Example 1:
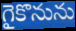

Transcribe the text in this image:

గైకొనును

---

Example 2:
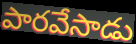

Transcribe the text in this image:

పారవేసాడు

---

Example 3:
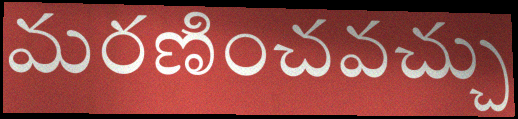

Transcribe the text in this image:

మరణించవచ్చు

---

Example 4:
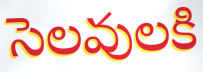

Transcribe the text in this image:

సెలవులకి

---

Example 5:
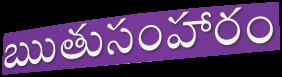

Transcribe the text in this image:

ఋతుసంహారం